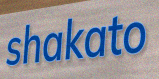
shakato